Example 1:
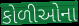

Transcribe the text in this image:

કોળીઓના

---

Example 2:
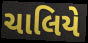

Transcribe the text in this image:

ચાલિયે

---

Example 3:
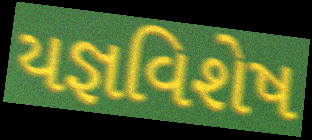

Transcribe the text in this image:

યજ્ઞવિશેષ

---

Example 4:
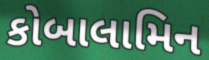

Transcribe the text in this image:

કોબાલામિન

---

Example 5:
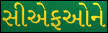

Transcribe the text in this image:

સીએફઓને